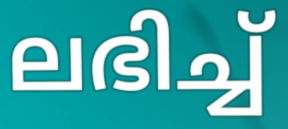
ലഭിച്ച്